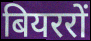
बियररों